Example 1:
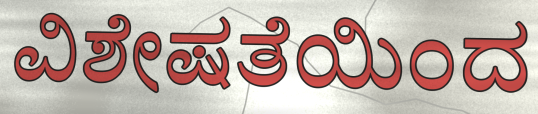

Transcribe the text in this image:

ವಿಶೇಷತೆಯಿಂದ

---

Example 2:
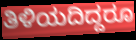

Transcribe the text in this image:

ತಿಳಿಯದಿದ್ದರೂ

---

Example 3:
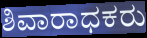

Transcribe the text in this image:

ಶಿವಾರಾಧಕರು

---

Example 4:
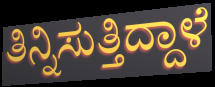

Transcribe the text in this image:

ತಿನ್ನಿಸುತ್ತಿದ್ದಾಳೆ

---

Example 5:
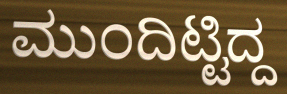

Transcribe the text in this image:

ಮುಂದಿಟ್ಟಿದ್ದ